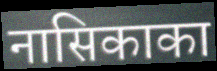
नासिकाका